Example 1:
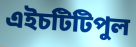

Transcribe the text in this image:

এইচটিটিপুল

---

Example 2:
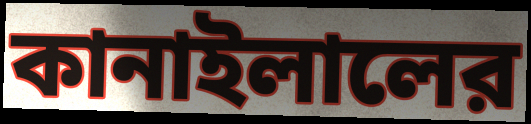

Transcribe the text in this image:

কানাইলালের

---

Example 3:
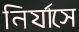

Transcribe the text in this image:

নির্যাসে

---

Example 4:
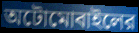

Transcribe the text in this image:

অটোমোবাইলের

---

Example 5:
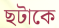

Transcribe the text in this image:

ছটাকে